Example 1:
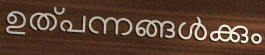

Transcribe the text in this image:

ഉത്പന്നങ്ങൾക്കും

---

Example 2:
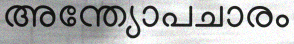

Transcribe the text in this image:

അന്ത്യോപചാരം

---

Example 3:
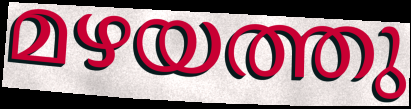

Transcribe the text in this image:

മഴയത്തു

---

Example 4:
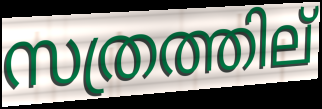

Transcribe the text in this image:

സത്രത്തില്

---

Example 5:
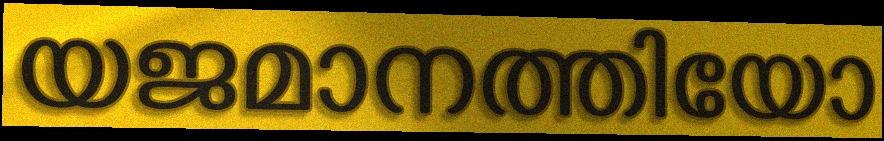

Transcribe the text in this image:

യജമാനത്തിയോ